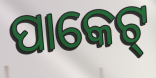
ପାକେଟ୍